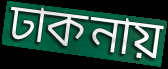
ঢাকনায়